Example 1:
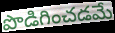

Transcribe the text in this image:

పొడిగించడమే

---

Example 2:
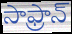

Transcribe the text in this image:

సాఫ్రాన్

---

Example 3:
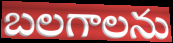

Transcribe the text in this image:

బలగాలను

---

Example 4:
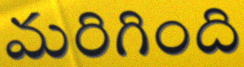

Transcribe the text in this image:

మరిగింది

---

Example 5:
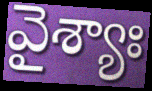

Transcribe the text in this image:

వైశ్యాః